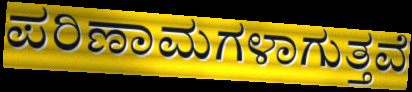
ಪರಿಣಾಮಗಳಾಗುತ್ತವೆ